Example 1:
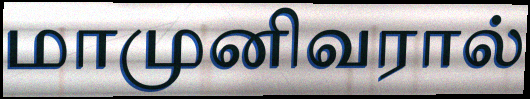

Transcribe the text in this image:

மாமுனிவரால்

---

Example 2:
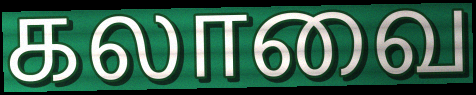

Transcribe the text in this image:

கலாவை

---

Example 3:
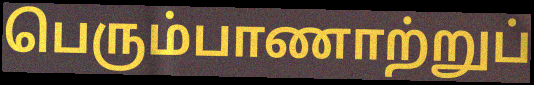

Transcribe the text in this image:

பெரும்பாணாற்றுப்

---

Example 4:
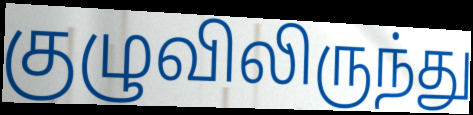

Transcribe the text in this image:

குழுவிலிருந்து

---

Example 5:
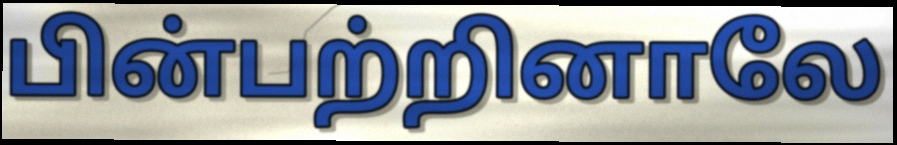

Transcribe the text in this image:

பின்பற்றினாலே